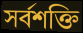
সর্বশক্তি